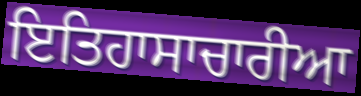
ਇਤਿਹਾਸਾਚਾਰੀਆ